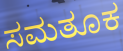
ಸಮತೂಕ